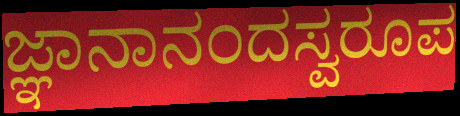
ಜ್ಞಾನಾನಂದಸ್ವರೂಪ